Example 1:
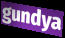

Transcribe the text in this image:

gundya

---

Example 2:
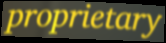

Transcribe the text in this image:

proprietary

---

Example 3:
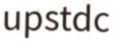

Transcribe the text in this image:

upstdc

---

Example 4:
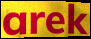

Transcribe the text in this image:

arek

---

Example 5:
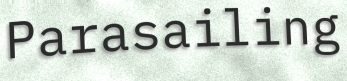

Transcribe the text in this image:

Parasailing